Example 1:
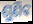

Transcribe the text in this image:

ଶୁଣିଵ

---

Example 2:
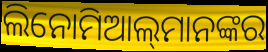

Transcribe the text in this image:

ଲିନୋମିଆଲ୍‌ମାନଙ୍କର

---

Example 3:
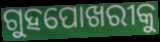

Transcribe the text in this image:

ଗୁହପୋଖରୀକୁ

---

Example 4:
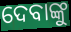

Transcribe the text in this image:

ଦେବାଙ୍କୁ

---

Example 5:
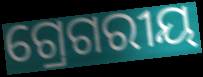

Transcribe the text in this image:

ଗ୍ରେଗରୀୟ